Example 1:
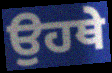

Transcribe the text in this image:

ਉਹਥੇ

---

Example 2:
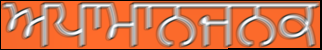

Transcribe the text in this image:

ਅਪਾਮਾਨਜਨਕ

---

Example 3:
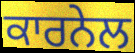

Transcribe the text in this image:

ਕਾਰਨੇਲ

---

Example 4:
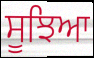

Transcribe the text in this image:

ਸੂਝਿਆ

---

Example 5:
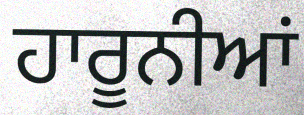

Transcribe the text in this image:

ਹਾਰੂਨੀਆਂ